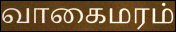
வாகைமரம்